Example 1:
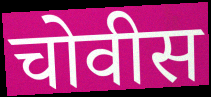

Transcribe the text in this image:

चोवीस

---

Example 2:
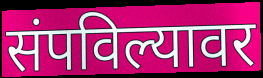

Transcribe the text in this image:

संपविल्यावर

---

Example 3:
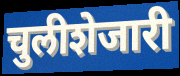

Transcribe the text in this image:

चुलीशेजारी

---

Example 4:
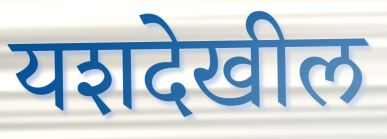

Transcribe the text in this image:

यशदेखील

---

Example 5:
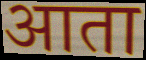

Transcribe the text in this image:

आता